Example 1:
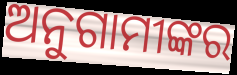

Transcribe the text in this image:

ଅନୁଗାମୀଙ୍କର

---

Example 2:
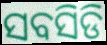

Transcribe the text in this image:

ସବସିଡି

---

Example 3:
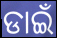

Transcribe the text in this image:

ଡାଇଁ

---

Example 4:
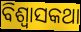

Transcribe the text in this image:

ବିଶ୍ଵାସକଥା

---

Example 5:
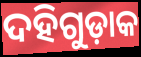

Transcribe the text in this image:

ଦହିଗୁଡ଼ାକ